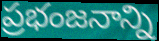
ప్రభంజనాన్ని